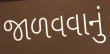
જાળવવાનું